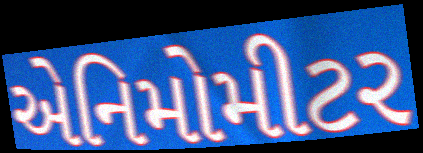
એનિમોમીટર